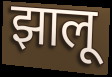
झालू